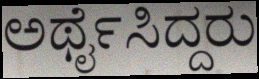
ಅರ್ಥೈಸಿದ್ದರು